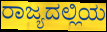
ರಾಜ್ಯದಲ್ಲಿಯ